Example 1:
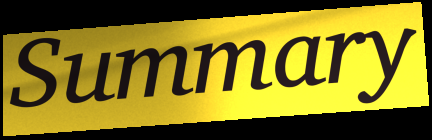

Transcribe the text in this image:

Summary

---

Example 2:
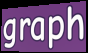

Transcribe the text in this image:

graph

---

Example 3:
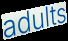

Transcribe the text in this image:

adults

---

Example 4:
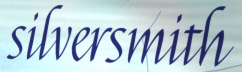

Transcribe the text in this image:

silversmith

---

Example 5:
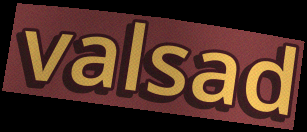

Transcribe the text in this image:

valsad